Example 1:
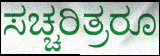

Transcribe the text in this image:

ಸಚ್ಚರಿತ್ರರೂ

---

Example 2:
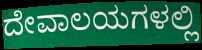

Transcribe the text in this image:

ದೇವಾಲಯಗಳಲ್ಲಿ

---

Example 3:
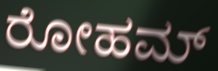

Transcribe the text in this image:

ರೋಹಮ್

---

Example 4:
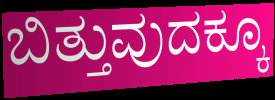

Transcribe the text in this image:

ಬಿತ್ತುವುದಕ್ಕೂ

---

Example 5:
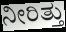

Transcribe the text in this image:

ನೀರಿತ್ತು